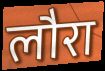
लौरा